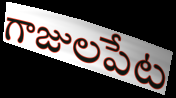
గాజులపేట